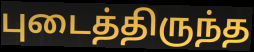
புடைத்திருந்த